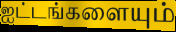
ஐட்டங்களையும்